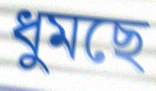
ধুমছে